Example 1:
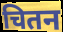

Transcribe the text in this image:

चितन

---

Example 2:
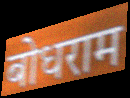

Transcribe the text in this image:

बोधराम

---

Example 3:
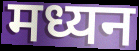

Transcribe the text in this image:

मध्यन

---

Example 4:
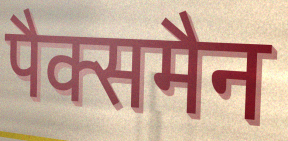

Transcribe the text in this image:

पैक्समैन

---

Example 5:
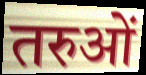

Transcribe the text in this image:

तरुओं